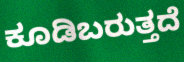
ಕೂಡಿಬರುತ್ತದೆ